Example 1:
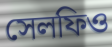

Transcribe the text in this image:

সেলফিও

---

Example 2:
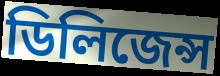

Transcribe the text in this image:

ডিলিজেন্স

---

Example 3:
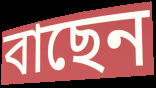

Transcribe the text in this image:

বাছেন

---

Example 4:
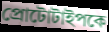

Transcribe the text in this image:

প্রোটোটাইপকে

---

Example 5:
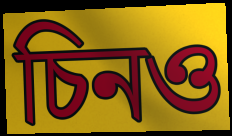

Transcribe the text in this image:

চিনও